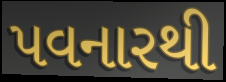
પવનારથી